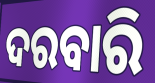
ଦରବାରି